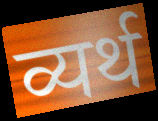
व्यर्थ